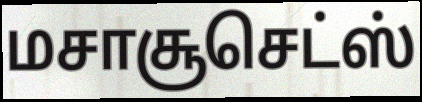
மசாசூசெட்ஸ்